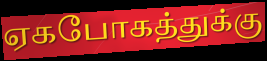
ஏகபோகத்துக்கு